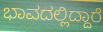
ಭಾವದಲ್ಲಿದ್ದಾರೆ